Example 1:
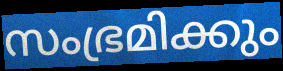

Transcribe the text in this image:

സംഭ്രമിക്കും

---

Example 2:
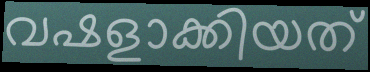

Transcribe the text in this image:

വഷളാക്കിയത്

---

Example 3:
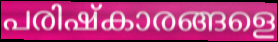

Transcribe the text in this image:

പരിഷ്‌കാരങ്ങളെ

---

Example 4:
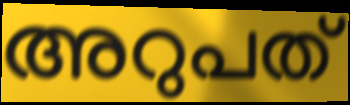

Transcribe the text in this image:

അറുപത്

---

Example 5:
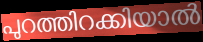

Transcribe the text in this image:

പുറത്തിറക്കിയാൽ